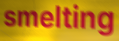
smelting